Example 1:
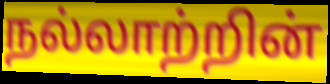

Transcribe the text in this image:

நல்லாற்றின்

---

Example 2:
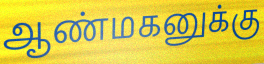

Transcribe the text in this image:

ஆண்மகனுக்கு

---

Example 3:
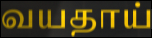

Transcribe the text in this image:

வயதாய்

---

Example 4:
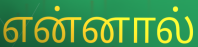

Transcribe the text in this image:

என்னால்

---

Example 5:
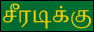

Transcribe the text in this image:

சீரடிக்கு